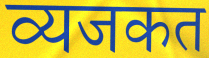
व्यजकत